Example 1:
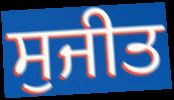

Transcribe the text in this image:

ਸੁਜੀਤ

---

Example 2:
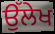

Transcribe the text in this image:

ਉੱਲੇਖ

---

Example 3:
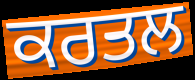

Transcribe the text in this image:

ਕਰਤਲ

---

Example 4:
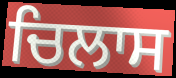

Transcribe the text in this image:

ਚਿਲਾਸ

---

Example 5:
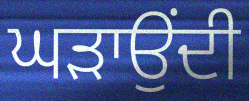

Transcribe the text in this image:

ਘੜਾਉਂਦੀ